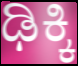
ಢಿಕ್ಕಿ